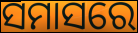
ସମାସରେ